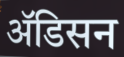
ॲडिसन